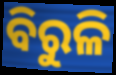
ବିରୁଳି